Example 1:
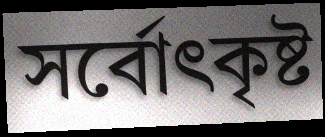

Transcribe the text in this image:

সৰ্বোৎকৃষ্ট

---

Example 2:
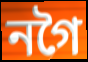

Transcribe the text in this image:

নগৈ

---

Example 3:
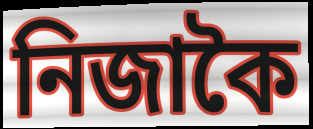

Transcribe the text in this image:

নিজাকৈ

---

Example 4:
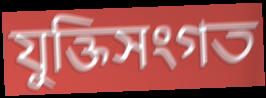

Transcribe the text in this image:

যুক্তিসংগত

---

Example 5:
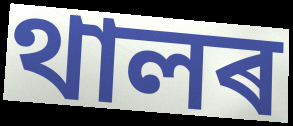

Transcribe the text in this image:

থালৰ